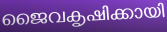
ജൈവകൃഷിക്കായി